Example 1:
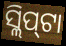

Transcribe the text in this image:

ସ୍ଲିପ୍‌ଟା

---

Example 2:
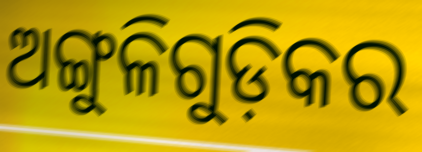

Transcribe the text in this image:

ଅଙ୍ଗୁଳିଗୁଡ଼ିକର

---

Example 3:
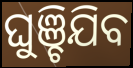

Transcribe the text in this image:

ଘୁଞ୍ଚିଯିବ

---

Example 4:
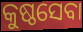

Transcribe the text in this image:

କୁଷ୍ଠସେବା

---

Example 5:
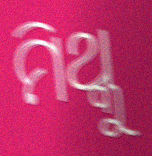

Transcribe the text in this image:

ମିଥ୍କୁ